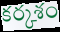
కర్కశం